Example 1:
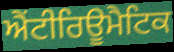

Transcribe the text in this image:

ਐਂਟੀਰਿਊਮੈਟਿਕ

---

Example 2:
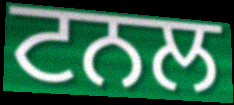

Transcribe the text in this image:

ਟਨਲ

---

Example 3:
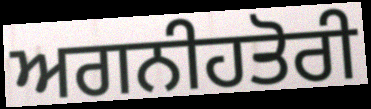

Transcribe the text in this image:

ਅਗਨੀਹਤੋਰੀ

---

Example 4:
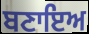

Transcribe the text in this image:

ਬਣਾਇਅ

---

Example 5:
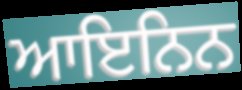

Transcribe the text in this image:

ਆਇਨਿਨ